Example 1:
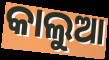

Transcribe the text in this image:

କାଲୁଆ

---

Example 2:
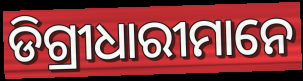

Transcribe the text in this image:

ଡିଗ୍ରୀଧାରୀମାନେ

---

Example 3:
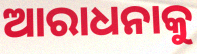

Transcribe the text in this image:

ଆରାଧନାକୁ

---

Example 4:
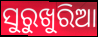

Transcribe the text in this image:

ସୁରୁଖୁରିଆ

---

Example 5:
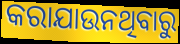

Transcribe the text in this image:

କରାଯାଉନଥିବାରୁ